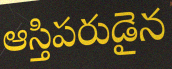
ఆస్తిపరుడైన